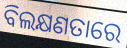
ବିଲକ୍ଷଣତାରେ